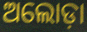
ଅଲୋଡ଼ା